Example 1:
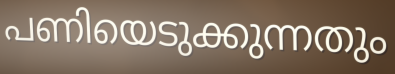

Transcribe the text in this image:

പണിയെടുക്കുന്നതും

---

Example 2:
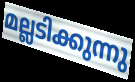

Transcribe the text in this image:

മല്ലടിക്കുന്നു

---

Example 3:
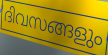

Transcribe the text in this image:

ദിവസങ്ങളും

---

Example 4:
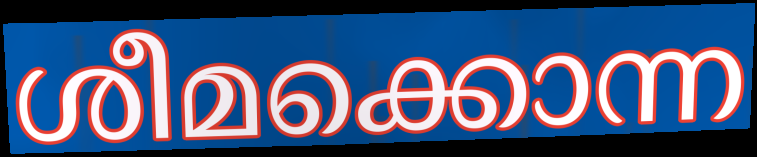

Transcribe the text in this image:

ശീമക്കൊന്ന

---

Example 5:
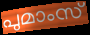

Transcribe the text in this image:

പുമാംസ്